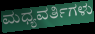
ಮಧ್ಯವರ್ತಿಗಳು